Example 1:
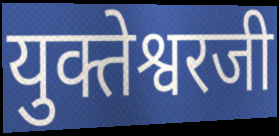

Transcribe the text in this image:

युक्तेश्वरजी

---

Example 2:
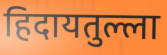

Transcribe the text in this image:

हिदायतुल्ला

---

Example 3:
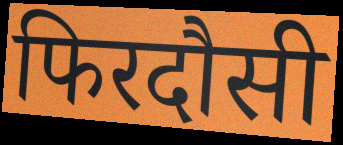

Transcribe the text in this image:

फिरदौसी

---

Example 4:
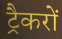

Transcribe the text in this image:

ट्रैकरों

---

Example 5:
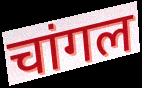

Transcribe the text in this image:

चांगल